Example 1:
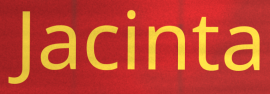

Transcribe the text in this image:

Jacinta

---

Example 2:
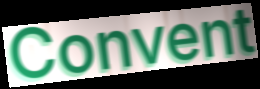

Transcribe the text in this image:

Convent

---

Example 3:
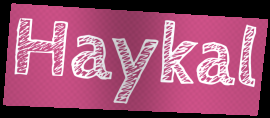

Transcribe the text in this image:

Haykal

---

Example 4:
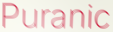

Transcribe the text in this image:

Puranic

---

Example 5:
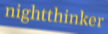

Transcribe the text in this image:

nightthinker